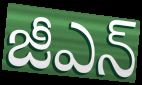
జీఎన్